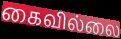
கைவில்லை